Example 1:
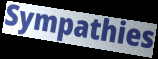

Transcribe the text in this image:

Sympathies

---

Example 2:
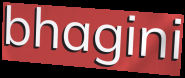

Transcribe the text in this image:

bhagini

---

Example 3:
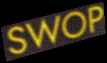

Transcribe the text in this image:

SWOP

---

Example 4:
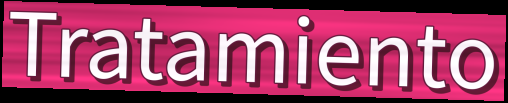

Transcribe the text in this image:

Tratamiento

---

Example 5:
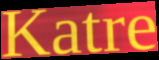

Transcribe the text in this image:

Katre